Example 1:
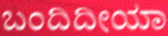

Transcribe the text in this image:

ಬಂದಿದೀಯಾ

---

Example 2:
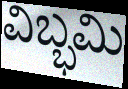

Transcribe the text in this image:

ವಿಬ್ಭಮಿ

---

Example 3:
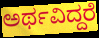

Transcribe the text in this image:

ಅರ್ಥವಿದ್ದರೆ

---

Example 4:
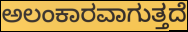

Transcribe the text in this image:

ಅಲಂಕಾರವಾಗುತ್ತದೆ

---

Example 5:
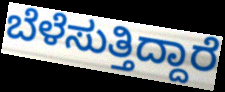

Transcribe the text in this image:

ಬೆಳೆಸುತ್ತಿದ್ದಾರೆ